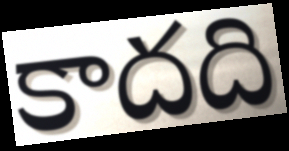
కాదది